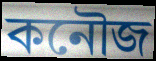
কনৌজ